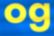
og